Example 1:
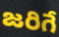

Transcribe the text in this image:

జరిగే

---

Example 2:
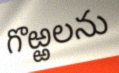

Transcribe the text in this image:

గొఱ్ఱలను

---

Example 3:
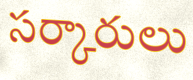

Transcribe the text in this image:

సర్కారులు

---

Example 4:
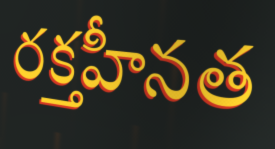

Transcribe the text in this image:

రక్తహీనత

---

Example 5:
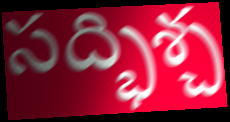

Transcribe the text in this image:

సద్భిశ్చ